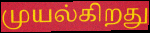
முயல்கிறது